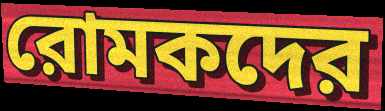
রোমকদের